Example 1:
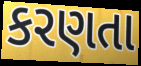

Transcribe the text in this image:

કરણતા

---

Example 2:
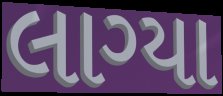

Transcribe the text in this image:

લાગ્યા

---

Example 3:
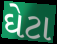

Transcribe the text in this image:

ઘેટા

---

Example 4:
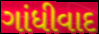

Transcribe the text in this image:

ગાંધીવાદ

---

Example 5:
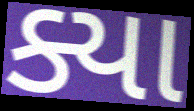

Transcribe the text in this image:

ક્યા